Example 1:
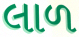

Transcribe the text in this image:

લાળ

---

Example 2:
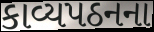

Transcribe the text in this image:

કાવ્યપઠનના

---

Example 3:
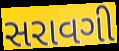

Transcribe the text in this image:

સરાવગી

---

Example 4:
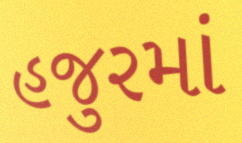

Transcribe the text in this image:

હજુરમાં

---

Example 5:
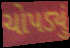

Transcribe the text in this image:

ચોપડ્યું